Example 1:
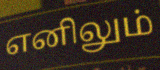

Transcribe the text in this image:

எனிலும்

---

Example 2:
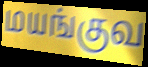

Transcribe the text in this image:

மயங்குவ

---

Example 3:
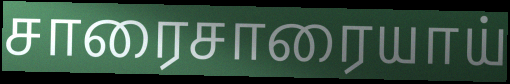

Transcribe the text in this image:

சாரைசாரையாய்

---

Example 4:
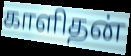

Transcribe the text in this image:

காளிதன்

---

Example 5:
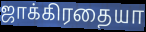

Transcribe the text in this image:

ஜாக்கிரதையா